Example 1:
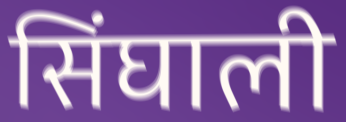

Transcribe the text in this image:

सिंघाली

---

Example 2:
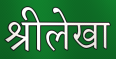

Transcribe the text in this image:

श्रीलेखा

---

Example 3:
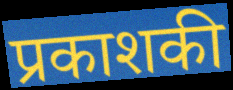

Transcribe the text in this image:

प्रकाशकी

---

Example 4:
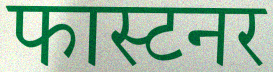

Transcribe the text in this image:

फास्टनर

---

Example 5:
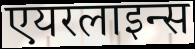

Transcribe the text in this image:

एयरलाइन्स